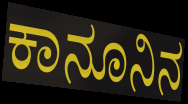
ಕಾನೂನಿನ